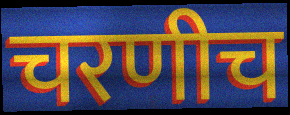
चरणीच